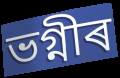
ভগ্নীৰ